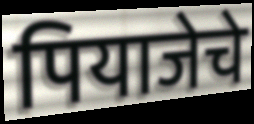
पियाजेचे